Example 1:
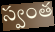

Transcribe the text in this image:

స్వంత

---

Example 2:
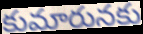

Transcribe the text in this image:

కుమారునకు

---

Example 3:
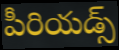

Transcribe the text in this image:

పీరియడ్స్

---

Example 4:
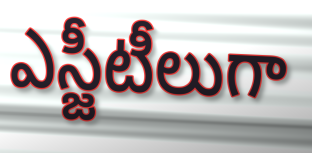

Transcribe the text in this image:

ఎస్జీటీలుగా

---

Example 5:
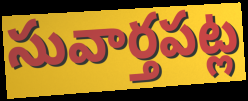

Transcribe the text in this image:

సువార్తపట్ల